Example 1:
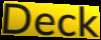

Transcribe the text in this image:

Deck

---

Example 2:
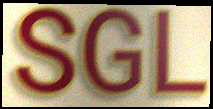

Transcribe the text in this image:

SGL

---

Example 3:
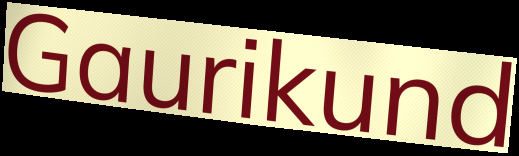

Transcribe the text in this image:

Gaurikund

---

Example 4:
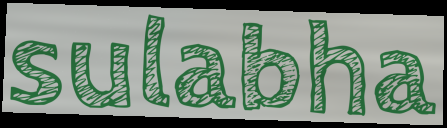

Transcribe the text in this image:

sulabha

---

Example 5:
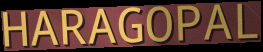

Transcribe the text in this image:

HARAGOPAL